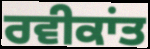
ਰਵੀਕਾਂਤ